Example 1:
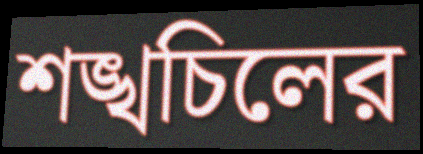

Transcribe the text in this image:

শঙ্খচিলের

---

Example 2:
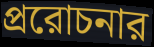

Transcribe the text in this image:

প্ররোচনার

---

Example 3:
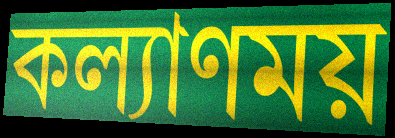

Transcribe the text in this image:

কল্যাণময়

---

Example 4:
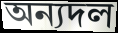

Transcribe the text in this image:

অন্যদল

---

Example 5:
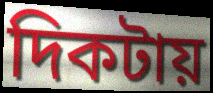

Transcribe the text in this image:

দিকটায়